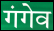
गंगेव